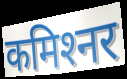
कमिश्‍नर